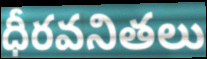
ధీరవనితలు